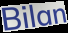
Bilan